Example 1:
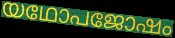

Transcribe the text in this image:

യഥോപജോഷം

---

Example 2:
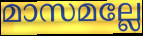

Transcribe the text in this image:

മാസമല്ലേ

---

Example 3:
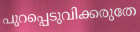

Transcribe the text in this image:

പുറപ്പെടുവിക്കരുതേ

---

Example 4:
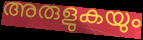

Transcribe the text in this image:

അരുളുകയും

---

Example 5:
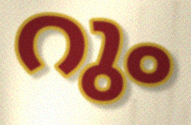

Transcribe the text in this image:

റും